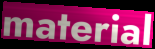
material